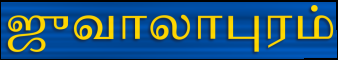
ஜுவாலாபுரம்